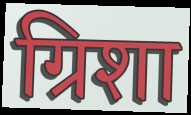
ग्रिशा